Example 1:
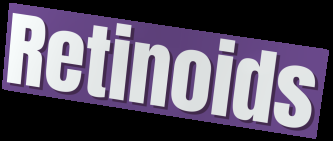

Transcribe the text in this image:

Retinoids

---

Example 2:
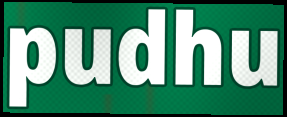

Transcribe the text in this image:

pudhu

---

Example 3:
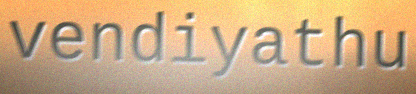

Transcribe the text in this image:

vendiyathu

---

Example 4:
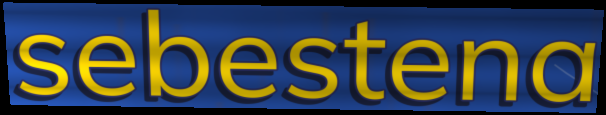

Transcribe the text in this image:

sebestena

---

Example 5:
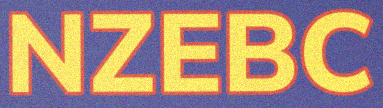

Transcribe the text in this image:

NZEBC